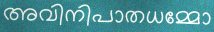
അവിനിപാതധമ്മോ